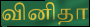
வினிதா